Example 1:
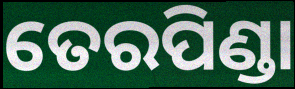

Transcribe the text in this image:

ତେରପିଣ୍ଡା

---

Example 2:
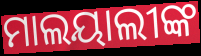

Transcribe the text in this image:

ମାଲୟାଲୀଙ୍କ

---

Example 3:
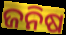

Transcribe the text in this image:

ଜନିଷ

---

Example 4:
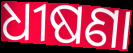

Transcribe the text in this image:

ଧୀଷଣା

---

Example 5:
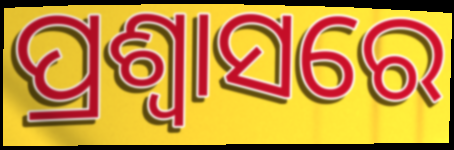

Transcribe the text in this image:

ପ୍ରଶ୍ଵାସରେ